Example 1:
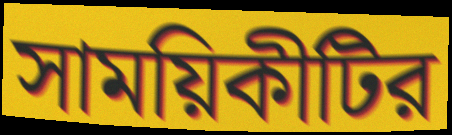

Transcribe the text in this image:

সাময়িকীটির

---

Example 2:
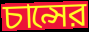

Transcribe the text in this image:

চান্সের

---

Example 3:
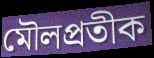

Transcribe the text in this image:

মৌলপ্রতীক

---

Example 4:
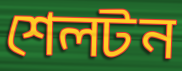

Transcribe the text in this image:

শেলটন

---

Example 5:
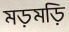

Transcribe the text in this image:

মড়মড়ি